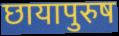
छायापुरुष